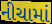
નીચામાં